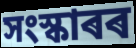
সংস্কাৰৰ